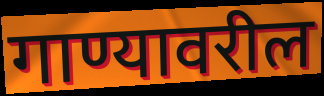
गाण्यावरील